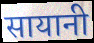
सायानी